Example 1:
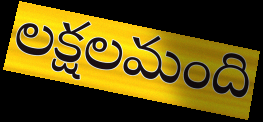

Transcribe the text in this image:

లక్షలమంది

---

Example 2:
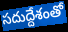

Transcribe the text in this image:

సదుద్దేశంతో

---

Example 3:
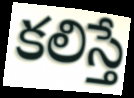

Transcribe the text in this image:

కలిస్తే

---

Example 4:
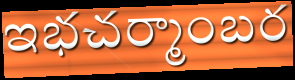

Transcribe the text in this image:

ఇభచర్మాంబర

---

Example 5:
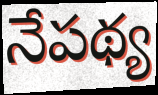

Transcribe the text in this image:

నేపథ్య